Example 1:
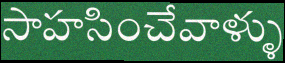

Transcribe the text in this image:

సాహసించేవాళ్ళు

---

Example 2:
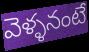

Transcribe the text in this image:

వెళ్ళనంటే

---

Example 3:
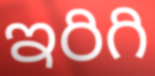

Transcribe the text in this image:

ఇరిగి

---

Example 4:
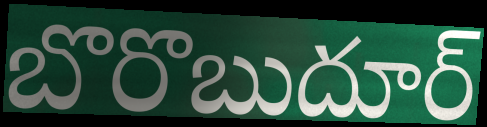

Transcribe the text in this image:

బొరొబుదూర్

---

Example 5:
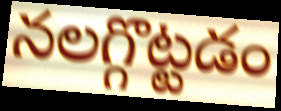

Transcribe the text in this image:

నలగ్గొట్టడం